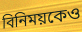
বিনিময়কেও